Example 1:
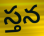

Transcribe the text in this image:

స్తన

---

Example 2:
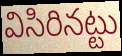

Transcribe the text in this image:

విసిరినట్టు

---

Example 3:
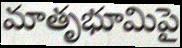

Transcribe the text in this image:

మాతృభూమిపై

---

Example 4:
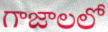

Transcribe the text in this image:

గాజాలలో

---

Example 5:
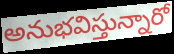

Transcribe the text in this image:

అనుభవిస్తున్నారో